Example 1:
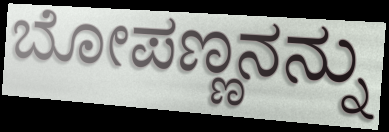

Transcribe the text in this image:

ಬೋಪಣ್ಣನನ್ನು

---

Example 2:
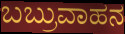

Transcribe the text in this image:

ಬಬ್ರುವಾಹನ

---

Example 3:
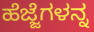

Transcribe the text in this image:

ಹೆಜ್ಜೆಗಳನ್ನ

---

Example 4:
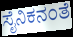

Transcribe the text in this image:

ಸೈನಿಕನಂತೆ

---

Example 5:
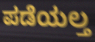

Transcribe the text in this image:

ಪಡೆಯಲ್ತ